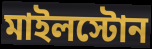
মাইলস্টোন